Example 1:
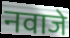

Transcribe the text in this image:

नवाजे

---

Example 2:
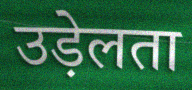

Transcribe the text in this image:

उड़ेलता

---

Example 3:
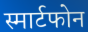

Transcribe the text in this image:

स्मार्टफोन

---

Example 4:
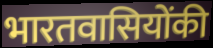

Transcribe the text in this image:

भारतवासियोंकी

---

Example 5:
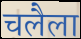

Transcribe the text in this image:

चलैला